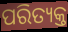
ପରିତ୍ଯକ୍ତ